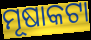
ମୂଷାକଟା